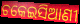
ଚକେଇସିଆଣୀ